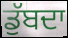
ਡੁੱਬਦਾ